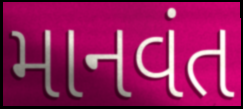
માનવંત